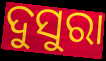
ଦୁସୁରା